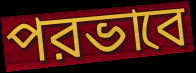
পরভাবে